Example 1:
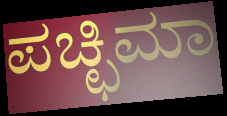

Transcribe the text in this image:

ಪಚ್ಛಿಮಾ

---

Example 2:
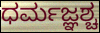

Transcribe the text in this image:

ಧರ್ಮಜ್ಞಶ್ಚ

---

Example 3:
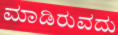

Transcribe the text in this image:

ಮಾಡಿರುವದು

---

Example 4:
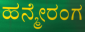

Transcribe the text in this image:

ಹನ್ಮೇರಂಗ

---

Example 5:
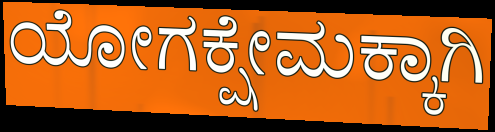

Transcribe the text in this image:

ಯೋಗಕ್ಷೇಮಕ್ಕಾಗಿ